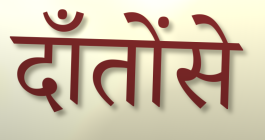
दाँतोंसे